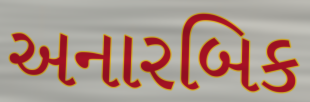
અનારબિક